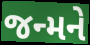
જન્મને